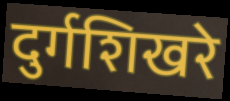
दुर्गशिखरे